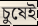
চুষেই